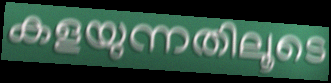
കളയുന്നതിലൂടെ